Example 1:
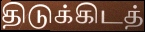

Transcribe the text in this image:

திடுக்கிடத்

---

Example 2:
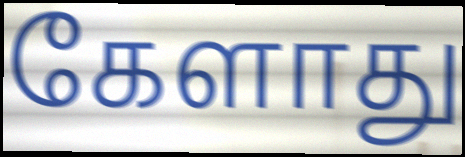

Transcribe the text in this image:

கேளாது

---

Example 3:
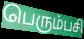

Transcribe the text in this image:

பெரும்பசி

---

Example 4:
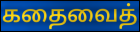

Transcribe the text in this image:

கதைவைத்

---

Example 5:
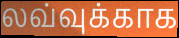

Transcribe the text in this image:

லவ்வுக்காக